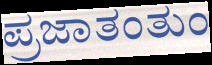
ಪ್ರಜಾತಂತುಂ